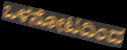
ಒಳನೋಟದಿಂದ